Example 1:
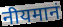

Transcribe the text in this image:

नीयमानं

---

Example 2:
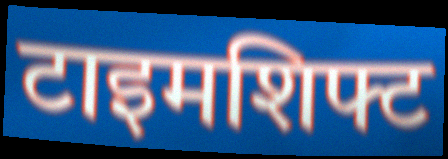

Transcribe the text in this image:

टाइमशिफ्ट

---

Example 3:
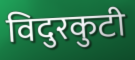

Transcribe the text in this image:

विदुरकुटी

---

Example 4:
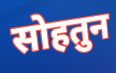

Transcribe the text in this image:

सोहतुन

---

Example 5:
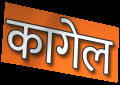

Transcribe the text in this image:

कागेल